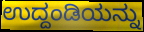
ಉದ್ದಂಡಿಯನ್ನು